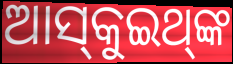
ଆସ୍‌କୁଇଥ୍‌ଙ୍କ